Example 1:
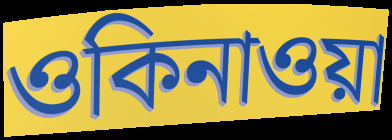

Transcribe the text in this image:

ওকিনাওয়া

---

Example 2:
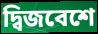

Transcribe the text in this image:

দ্বিজবেশে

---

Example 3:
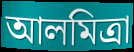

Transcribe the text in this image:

আলমিত্রা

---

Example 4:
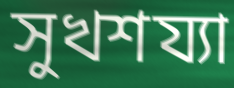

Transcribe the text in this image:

সুখশয্যা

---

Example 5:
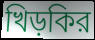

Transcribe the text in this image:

খিড়কির